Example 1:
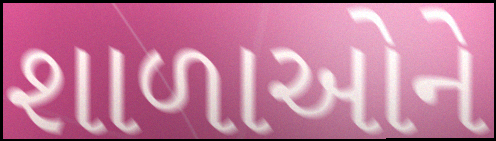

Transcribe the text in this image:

શાળાઓને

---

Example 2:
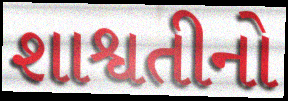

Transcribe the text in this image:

શાશ્વતીનો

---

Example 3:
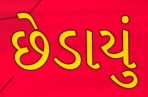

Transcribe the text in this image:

છેડાયું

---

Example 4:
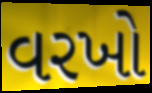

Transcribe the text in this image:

વરખો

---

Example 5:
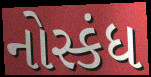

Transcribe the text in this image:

નોસ્કંધ